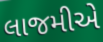
લાજમીએ